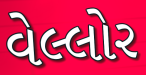
વેલ્લોર